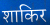
शाकिर